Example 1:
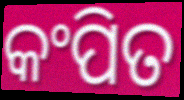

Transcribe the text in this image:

କଂପିତ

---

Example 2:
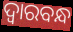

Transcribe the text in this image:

ଦ୍ବାରବନ୍ଧ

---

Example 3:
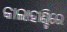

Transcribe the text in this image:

କାଲାହାଣ୍ଡିରେ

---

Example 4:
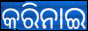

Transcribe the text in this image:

କରିନାଇ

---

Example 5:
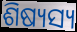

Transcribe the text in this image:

ଶିଷ୍ୟସ୍ୟ